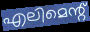
എലിമെന്റ്